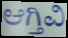
ಆಗ್ತಿವಿ